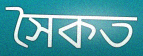
সৈকত